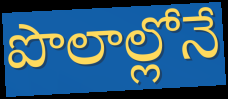
పొలాల్లోనే